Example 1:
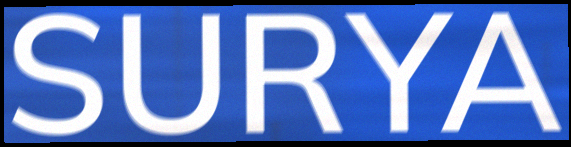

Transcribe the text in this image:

SURYA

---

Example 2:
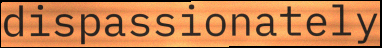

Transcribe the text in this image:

dispassionately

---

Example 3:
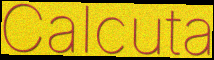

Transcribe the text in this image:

Calcuta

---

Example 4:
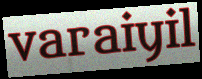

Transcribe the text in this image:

varaiyil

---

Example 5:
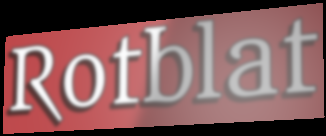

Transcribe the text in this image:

Rotblat